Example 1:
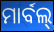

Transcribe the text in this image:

ମାର୍ବଲ୍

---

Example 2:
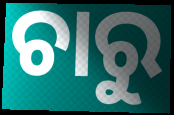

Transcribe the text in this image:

ଚାରୁ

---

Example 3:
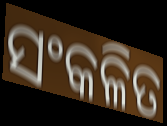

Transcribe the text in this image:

ସଂକଳିତ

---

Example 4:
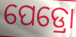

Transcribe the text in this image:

ପେଡ୍ରୋ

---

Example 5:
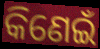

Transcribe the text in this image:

କିଣେଇଁ